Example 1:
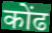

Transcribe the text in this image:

कोंढ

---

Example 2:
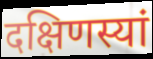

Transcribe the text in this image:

दक्षिणस्यां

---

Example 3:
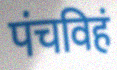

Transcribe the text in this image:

पंचविहं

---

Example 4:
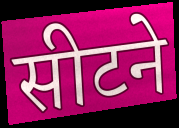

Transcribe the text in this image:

सीटने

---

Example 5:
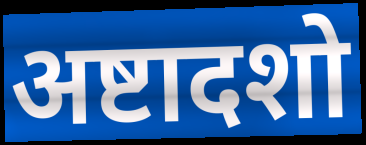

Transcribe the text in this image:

अष्टादशो